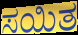
ಸಯಿತ